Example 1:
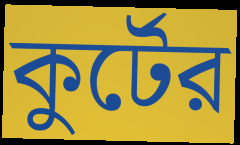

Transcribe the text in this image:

কুর্টের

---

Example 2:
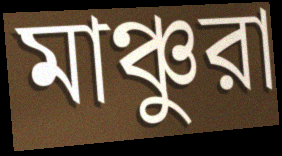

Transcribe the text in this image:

মাঞ্চুরা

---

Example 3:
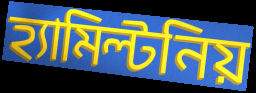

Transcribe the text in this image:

হ্যামিল্টনিয়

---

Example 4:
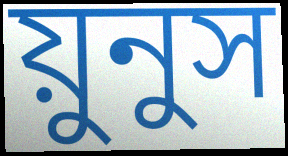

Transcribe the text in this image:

য়ুনুস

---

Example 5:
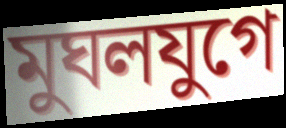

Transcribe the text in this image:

মুঘলযুগে